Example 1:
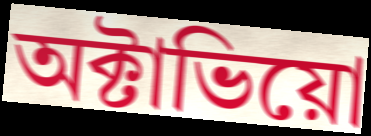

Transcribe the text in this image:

অক্টাভিয়ো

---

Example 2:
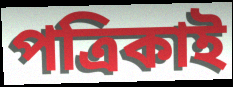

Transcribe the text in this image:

পত্রিকাই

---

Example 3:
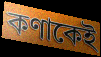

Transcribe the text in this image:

কণাকেই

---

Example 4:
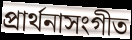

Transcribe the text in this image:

প্রার্থনাসংগীত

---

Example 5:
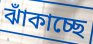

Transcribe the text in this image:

ঝাঁকাচ্ছে